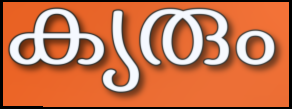
ക്യരും